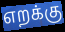
எறக்கு